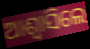
ଆଶ୍ୱାସିଲେ